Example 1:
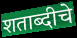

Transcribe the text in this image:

शताब्दीचे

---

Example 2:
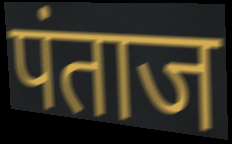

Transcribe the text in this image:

पंताज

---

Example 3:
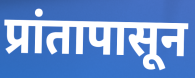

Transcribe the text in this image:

प्रांतापासून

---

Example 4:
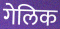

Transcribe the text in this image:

गेलिक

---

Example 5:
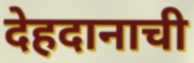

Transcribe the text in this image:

देहदानाची